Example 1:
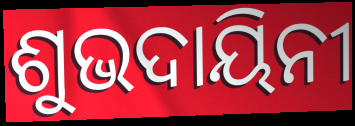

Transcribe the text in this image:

ଶୁଭଦାୟିନୀ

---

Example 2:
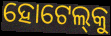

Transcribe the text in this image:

ହୋଟେଲ୍‌କୁ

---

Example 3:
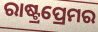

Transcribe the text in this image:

ରାଷ୍ଟ୍ରପ୍ରେମର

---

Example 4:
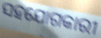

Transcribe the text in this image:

ସହଯୋଗକାରୀ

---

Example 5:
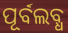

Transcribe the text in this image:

ପୂର୍ବଲବ୍ଧ